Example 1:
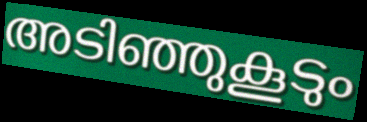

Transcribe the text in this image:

അടിഞ്ഞുകൂടും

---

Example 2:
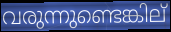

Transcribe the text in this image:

വരുന്നുണ്ടെങ്കില്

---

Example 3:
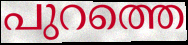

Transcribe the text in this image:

പുറത്തെ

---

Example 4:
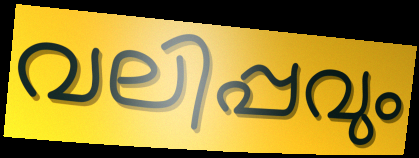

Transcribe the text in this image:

വലിപ്പവും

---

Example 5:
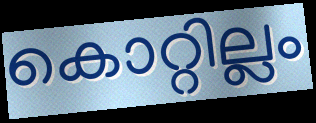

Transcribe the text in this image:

കൊറ്റില്ലം